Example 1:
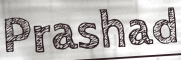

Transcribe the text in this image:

Prashad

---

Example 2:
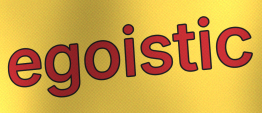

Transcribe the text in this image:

egoistic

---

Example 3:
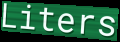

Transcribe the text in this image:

Liters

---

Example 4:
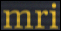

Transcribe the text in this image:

mri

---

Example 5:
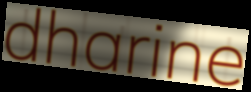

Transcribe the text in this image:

dharine